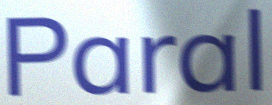
Paral